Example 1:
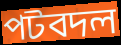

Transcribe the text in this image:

পটবদল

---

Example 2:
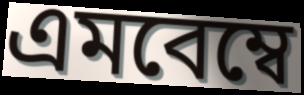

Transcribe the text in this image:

এমবেম্বে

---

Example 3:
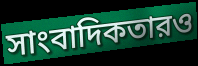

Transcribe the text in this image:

সাংবাদিকতারও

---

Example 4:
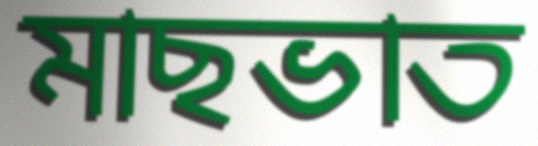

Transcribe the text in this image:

মাছভাত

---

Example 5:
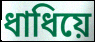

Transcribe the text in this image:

ধাধিয়ে